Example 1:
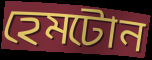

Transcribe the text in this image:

হেমটোন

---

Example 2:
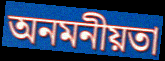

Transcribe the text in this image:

অনমনীয়তা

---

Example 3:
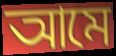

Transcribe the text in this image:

আমে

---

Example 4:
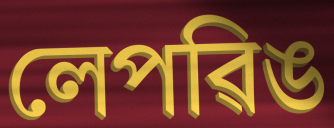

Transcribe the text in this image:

লেপৱিঙ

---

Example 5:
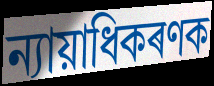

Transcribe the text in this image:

ন্যায়াধিকৰণক